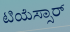
ಟಿಯೆಸ್ಸಾರ್